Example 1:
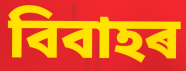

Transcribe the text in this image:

বিবাহৰ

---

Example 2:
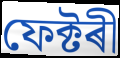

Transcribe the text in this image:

ফেক্টৰী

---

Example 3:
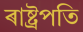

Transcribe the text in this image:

ৰাষ্ট্ৰপতি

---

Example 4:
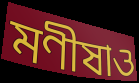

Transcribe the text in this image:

মণীষাও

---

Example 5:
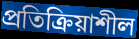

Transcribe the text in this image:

প্ৰতিক্ৰিয়াশীল